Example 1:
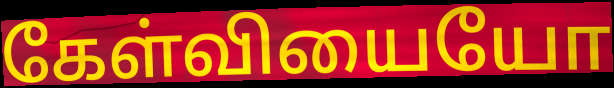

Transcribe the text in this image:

கேள்வியையோ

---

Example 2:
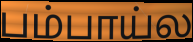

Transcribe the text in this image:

பம்பாய்ல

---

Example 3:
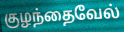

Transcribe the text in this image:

குழந்தைவேல்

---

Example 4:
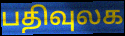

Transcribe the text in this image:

பதிவுலக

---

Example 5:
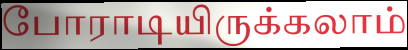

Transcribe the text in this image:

போராடியிருக்கலாம்